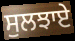
ਸੁਲਝਾਏ